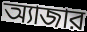
অ্যাজার